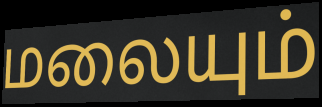
மலையும்